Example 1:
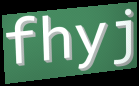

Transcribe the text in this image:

fhyj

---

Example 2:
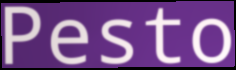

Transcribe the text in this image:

Pesto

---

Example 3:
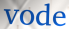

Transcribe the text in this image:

vode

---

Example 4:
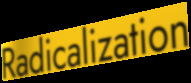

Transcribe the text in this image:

Radicalization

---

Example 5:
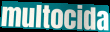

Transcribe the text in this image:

multocida